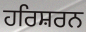
ਹਰਿਸ਼ਰਨ